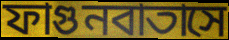
ফাগুনবাতাসে